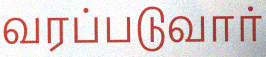
வரப்படுவார்